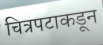
चित्रपटाकडून